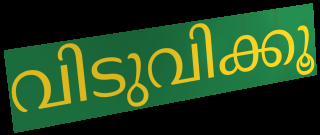
വിടുവിക്കൂ